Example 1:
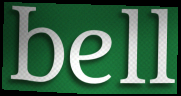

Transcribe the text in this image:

bell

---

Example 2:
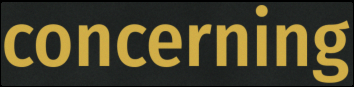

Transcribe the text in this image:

concerning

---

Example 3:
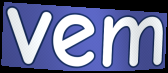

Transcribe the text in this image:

vem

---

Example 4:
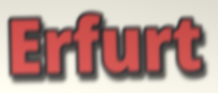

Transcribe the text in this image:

Erfurt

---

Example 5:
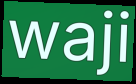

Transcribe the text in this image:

waji